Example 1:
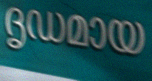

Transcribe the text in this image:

ദൃഡമായ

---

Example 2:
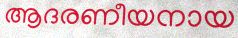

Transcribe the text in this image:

ആദരണീയനായ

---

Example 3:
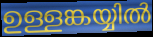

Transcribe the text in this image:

ഉള്ളങ്കയ്യിൽ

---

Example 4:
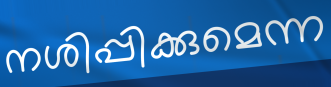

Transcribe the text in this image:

നശിപ്പിക്കുമെന്ന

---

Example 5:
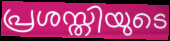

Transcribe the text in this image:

പ്രശസ്തിയുടെ